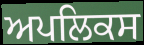
ਅਪਲਿਕਸ